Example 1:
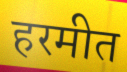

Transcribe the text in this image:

हरमीत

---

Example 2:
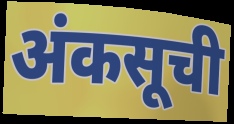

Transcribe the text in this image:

अंकसूची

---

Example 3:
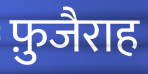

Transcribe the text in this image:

फ़ुजैराह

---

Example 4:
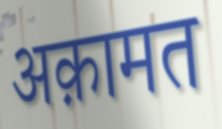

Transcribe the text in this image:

अक़ामत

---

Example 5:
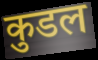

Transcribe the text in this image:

कुडल